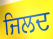
ਜਿਲਦ